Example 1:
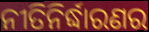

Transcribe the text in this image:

ନୀତିନିର୍ଦ୍ଧାରଣର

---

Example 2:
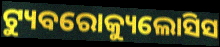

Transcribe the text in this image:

ଟ୍ୟୁବରୋକ୍ୟୁଲୋସିସ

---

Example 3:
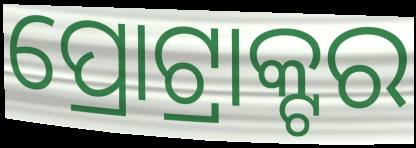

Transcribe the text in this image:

ପ୍ରୋଟ୍ରାକ୍ଟର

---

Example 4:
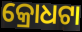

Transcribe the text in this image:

କ୍ରୋଧଟା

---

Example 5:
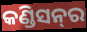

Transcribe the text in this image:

କଣ୍ଡିସନ୍‌ର